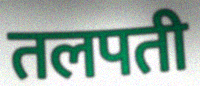
तलपती